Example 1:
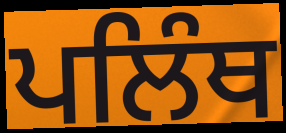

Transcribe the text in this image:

ਪਲਿੰਥ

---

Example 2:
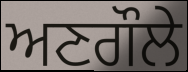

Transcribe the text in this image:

ਅਣਗੌਲੇ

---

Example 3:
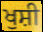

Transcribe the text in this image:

ਖੁਸ਼ੀ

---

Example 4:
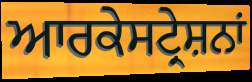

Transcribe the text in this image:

ਆਰਕੇਸਟ੍ਰੇਸ਼ਨਾਂ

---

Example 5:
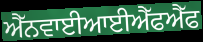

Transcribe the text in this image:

ਐੱਨਵਾਈਆਈਐੱਫਐੱਫ